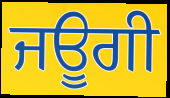
ਜਊਗੀ